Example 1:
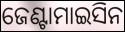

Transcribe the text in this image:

ଜେଣ୍ଟାମାଇସିନ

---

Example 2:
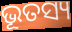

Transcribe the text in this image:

ଭୂତସ୍ୟ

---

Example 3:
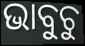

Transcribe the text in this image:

ଭାବୁଚୁ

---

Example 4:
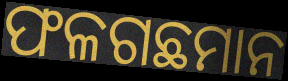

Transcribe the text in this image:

ଫଳଗଛମାନ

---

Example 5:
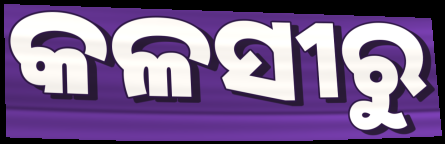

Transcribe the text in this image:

କଳସୀରୁ